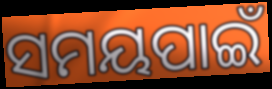
ସମୟପାଇଁ